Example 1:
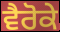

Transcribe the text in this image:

ਵੈਰੋਕੇ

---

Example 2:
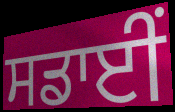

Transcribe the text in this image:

ਸਡਾਈਂ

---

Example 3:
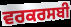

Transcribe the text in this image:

ਵਰਕਰਸਬੀ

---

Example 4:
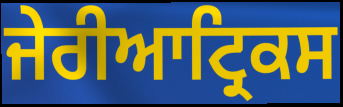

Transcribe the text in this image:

ਜੇਰੀਆਟ੍ਰਿਕਸ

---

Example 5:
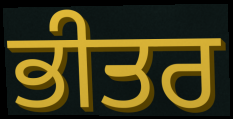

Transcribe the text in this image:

ਭੀਤਰ